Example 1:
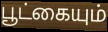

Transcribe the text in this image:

பூட்கையும்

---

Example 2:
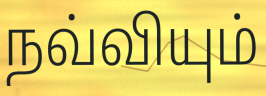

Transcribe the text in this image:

நவ்வியும்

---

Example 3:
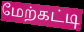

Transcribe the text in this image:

மேற்கட்டி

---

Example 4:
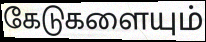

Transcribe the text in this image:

கேடுகளையும்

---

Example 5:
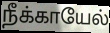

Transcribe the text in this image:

நீக்காயேல்